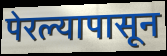
पेरल्यापासून